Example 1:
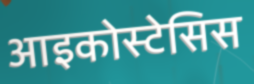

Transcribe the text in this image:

आइकोस्टेसिस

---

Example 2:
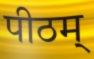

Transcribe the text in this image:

पीठम्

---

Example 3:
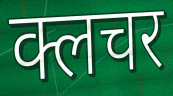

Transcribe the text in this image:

क्लचर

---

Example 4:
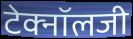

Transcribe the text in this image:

टेक्‍नॉलजी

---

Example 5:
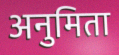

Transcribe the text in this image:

अनुमिता